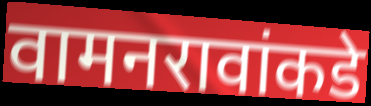
वामनरावांकडे